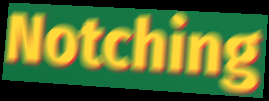
Notching